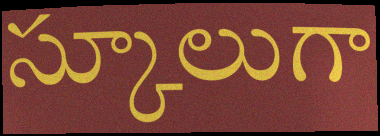
స్కూలుగా